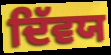
ਦਿੱਵਯ